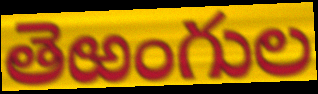
తెఱంగుల